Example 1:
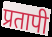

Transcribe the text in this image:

प्रतापी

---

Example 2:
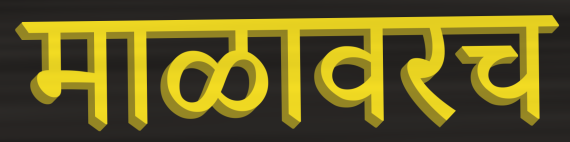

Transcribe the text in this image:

माळावरच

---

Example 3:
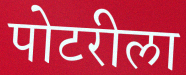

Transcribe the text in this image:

पोटरीला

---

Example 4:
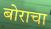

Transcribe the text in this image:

बोराचा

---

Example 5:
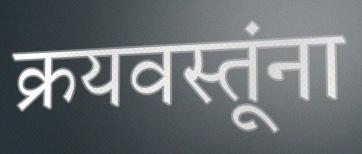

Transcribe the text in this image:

क्रयवस्तूंना